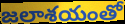
జలాశయంతో